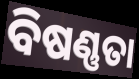
ବିଷଣ୍ଣତା